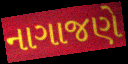
નાગાજણે